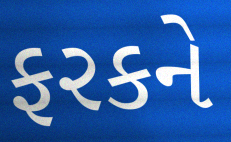
ફરકને